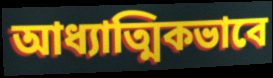
আধ্যাত্মিকভাবে